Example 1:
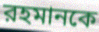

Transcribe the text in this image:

রহমানকে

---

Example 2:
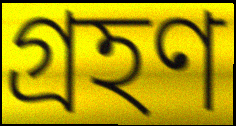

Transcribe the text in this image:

গ্রহণ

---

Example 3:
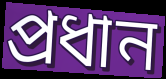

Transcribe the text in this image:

প্রধান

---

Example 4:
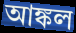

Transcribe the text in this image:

আঙ্কল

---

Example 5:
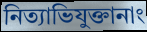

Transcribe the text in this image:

নিত্যাভিযুক্তানাং